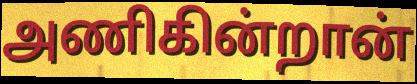
அணிகின்றான்